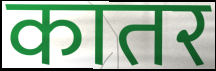
कातर